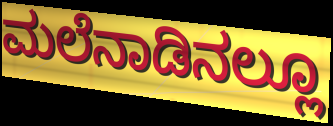
ಮಲೆನಾಡಿನಲ್ಲೂ